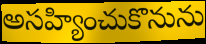
అసహ్యించుకొనును